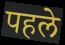
पहले